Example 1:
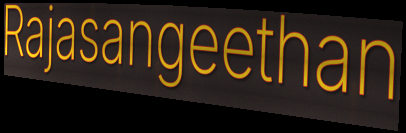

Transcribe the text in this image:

Rajasangeethan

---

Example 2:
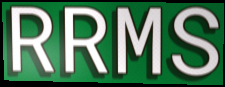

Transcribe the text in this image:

RRMS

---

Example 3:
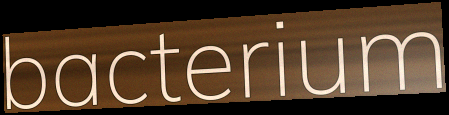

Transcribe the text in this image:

bacterium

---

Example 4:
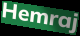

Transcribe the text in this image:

Hemraj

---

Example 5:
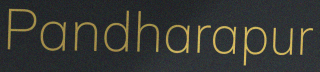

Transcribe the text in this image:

Pandharapur